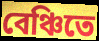
বেঞ্চিতে